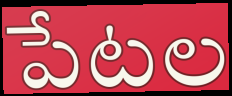
పేటల